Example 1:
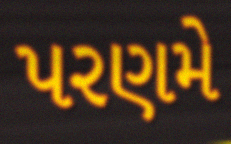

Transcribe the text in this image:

પરણમે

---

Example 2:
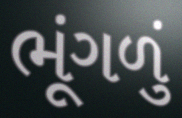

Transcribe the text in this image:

ભૂંગળું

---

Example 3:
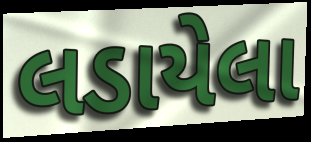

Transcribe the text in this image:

લડાયેલા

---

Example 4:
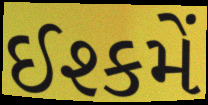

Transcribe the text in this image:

ઈશ્કમેં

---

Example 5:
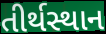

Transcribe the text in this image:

તીર્થસ્થાન